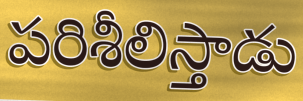
పరిశీలిస్తాడు